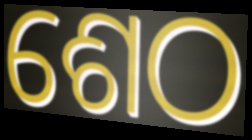
ଶେଠ